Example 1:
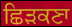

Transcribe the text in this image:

ਛਿੜਕਣਾ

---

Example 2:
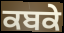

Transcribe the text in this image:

ਕਬਕੇ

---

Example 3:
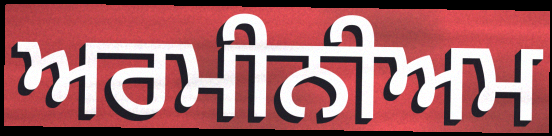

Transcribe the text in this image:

ਅਰਮੀਨੀਅਮ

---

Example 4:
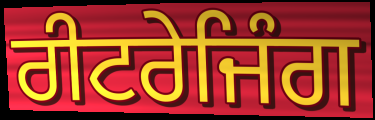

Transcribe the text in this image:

ਰੀਟਰੇਜਿੰਗ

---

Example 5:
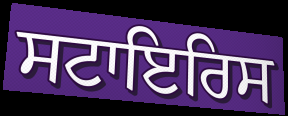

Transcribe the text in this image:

ਸਟਾਇਰਿਸ